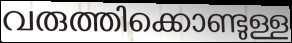
വരുത്തിക്കൊണ്ടുള്ള